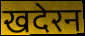
खदेरन